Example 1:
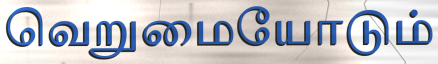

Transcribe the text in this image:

வெறுமையோடும்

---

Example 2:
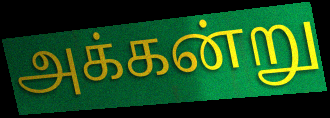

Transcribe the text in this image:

அக்கன்று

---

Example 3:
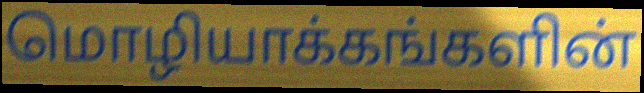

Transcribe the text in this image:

மொழியாக்கங்களின்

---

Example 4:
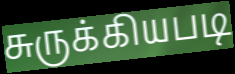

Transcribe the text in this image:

சுருக்கியபடி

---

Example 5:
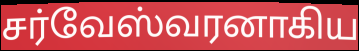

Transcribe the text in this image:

சர்வேஸ்வரனாகிய